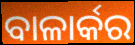
ବାଳାର୍କର